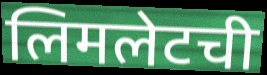
लिमलेटची